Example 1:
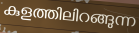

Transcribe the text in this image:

കുളത്തിലിറങ്ങുന്ന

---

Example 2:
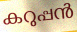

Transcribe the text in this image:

കറുപ്പൻ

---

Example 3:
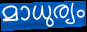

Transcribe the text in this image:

മാധുര്യം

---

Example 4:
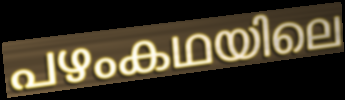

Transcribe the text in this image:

പഴംകഥയിലെ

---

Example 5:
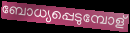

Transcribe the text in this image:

ബോധ്യപ്പെടുമ്പോള്